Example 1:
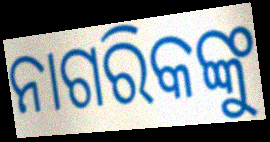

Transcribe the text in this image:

ନାଗରିକଙ୍କୁ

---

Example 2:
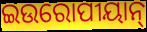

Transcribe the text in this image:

ଇଉରୋପୀୟାନ୍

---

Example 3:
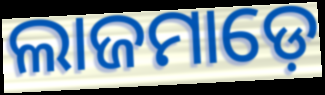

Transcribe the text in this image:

ଲାଜମାଡ଼େ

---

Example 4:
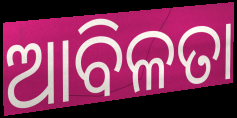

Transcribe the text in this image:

ଆବିଳତା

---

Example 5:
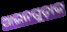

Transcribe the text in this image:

ଆଇନଗୁଡ଼ାକ